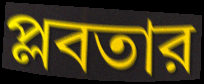
প্লবতার